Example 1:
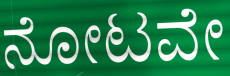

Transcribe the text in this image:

ನೋಟವೇ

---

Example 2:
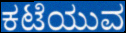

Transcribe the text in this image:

ಕಟೆಯುವ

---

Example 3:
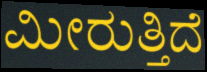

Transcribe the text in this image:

ಮೀರುತ್ತಿದೆ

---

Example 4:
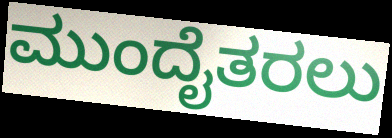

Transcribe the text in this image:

ಮುಂದೈತರಲು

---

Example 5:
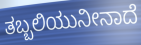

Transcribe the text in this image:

ತಬ್ಬಲಿಯುನೀನಾದೆ